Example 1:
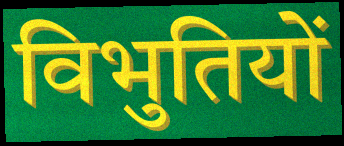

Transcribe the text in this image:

विभुतियों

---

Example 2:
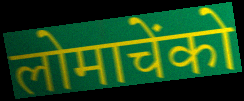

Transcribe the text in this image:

लोमाचेंको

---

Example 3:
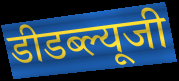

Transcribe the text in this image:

डीडब्ल्यूजी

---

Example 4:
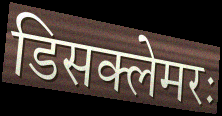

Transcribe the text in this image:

डिसक्लेमरः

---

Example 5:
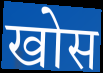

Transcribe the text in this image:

खोस